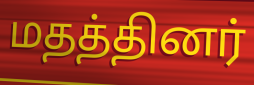
மதத்தினர்